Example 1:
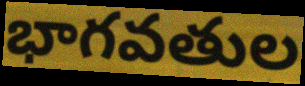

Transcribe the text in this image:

భాగవతుల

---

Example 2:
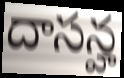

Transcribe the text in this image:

దాసన్హ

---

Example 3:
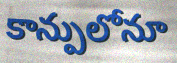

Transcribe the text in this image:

కాన్పులోనూ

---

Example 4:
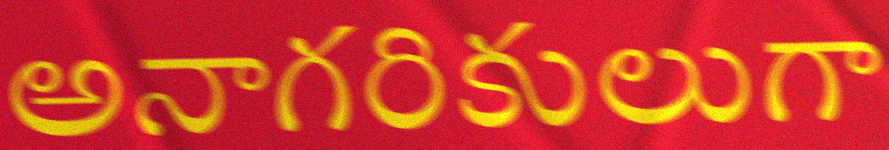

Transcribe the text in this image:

అనాగరికులుగా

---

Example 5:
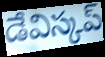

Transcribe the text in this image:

డేవిస్కప్